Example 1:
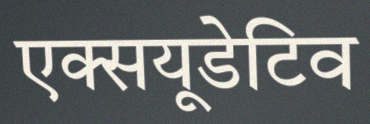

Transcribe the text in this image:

एक्सयूडेटिव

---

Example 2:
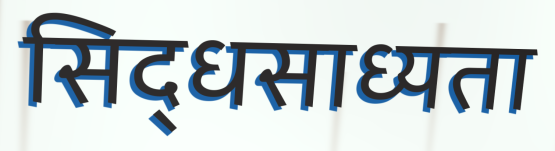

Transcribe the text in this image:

सिद्धसाध्यता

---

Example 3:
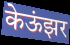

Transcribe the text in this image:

केऊंझर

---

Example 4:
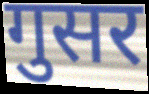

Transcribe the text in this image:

गुसर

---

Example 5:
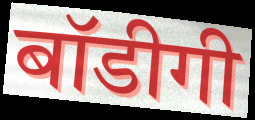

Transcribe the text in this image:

बॉडीगी